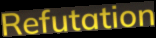
Refutation